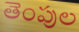
తెంపుల